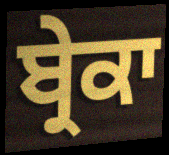
ਬ੍ਰੇਕਾ